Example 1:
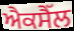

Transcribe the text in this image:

ਐਕਸੈੱਲ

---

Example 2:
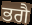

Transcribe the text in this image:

ਭਗੈ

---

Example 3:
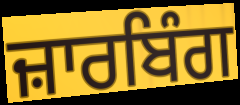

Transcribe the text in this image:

ਜ਼ਾਰਬਿੰਗ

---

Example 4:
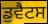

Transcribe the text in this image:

ਡੁਵੈਟਸ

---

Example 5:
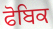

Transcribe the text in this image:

ਫੋਬਿਕ